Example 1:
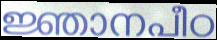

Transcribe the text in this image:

ജ്ഞാനപീഠ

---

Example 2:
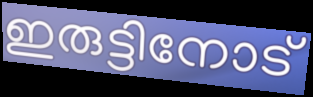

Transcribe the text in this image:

ഇരുട്ടിനോട്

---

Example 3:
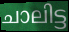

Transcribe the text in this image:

ചാലിട്ട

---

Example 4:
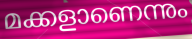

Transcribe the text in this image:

മക്കളാണെന്നും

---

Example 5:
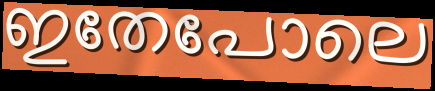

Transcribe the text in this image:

ഇതേപോലെ